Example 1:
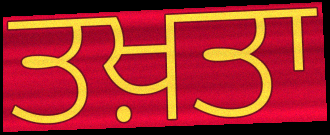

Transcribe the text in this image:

ਤਖ਼ਤਾ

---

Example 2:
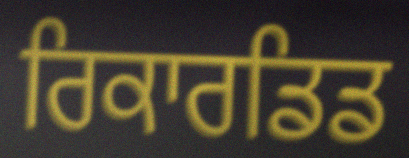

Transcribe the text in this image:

ਰਿਕਾਰਡਿਡ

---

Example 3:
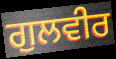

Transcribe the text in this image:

ਗੁਲਵੀਰ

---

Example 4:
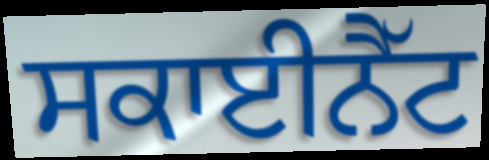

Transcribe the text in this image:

ਸਕਾਈਨੈੱਟ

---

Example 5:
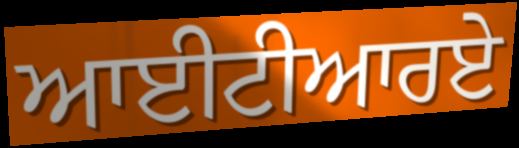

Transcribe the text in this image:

ਆਈਟੀਆਰਏ